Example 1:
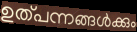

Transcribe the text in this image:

ഉത്പന്നങ്ങൾക്കും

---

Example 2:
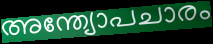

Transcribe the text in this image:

അന്ത്യോപചാരം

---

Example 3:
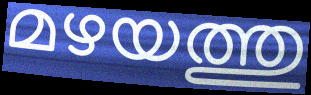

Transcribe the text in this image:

മഴയത്തു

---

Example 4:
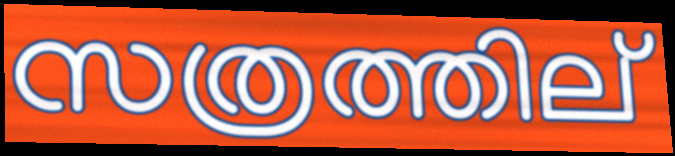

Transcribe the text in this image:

സത്രത്തില്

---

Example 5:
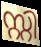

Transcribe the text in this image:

സ്റ്റി